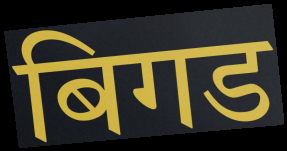
बिगड